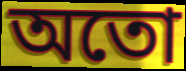
অতো